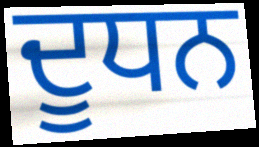
ਦੂਧਨ